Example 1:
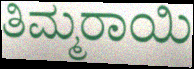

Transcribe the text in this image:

ತಿಮ್ಮರಾಯಿ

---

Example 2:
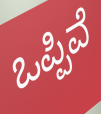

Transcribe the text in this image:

ಒಪ್ಪಿವೆ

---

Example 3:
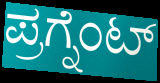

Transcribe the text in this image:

ಪ್ರಗ್ನೆಂಟ್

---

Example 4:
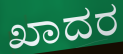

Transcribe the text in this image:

ಖಾದರ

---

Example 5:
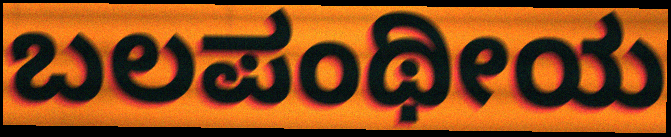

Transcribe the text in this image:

ಬಲಪಂಥೀಯ